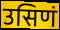
उसिणं